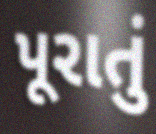
પૂરાતું